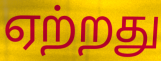
ஏற்றது